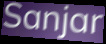
Sanjar